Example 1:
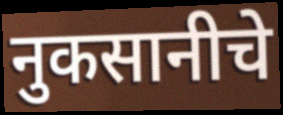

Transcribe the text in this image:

नुकसानीचे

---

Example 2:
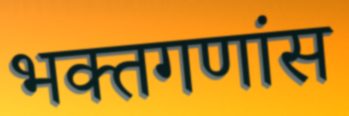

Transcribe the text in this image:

भक्तगणांस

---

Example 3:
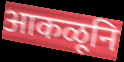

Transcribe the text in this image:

आकळूनि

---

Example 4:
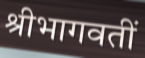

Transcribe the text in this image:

श्रीभागवतीं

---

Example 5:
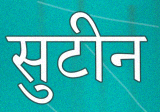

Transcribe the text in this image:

सुटीन